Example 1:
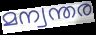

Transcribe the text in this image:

മന്വന്തര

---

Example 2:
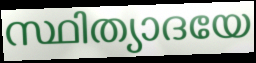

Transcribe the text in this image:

സ്ഥിത്യാദയേ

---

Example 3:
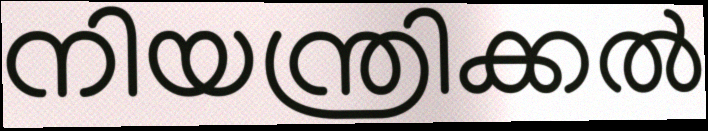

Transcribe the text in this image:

നിയന്ത്രിക്കൽ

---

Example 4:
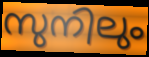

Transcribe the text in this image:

സുനിലും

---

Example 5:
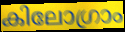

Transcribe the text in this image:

കിലോഗ്രാം